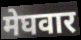
मेघवार